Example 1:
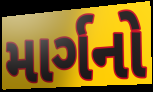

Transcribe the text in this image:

માર્ગનો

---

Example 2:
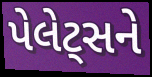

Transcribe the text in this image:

પેલેટ્સને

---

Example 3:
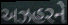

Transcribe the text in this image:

અઝહરને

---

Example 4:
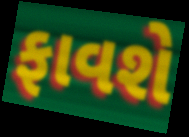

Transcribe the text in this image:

ફાવશે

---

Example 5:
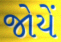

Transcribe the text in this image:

જોયેં